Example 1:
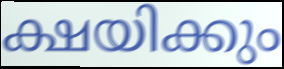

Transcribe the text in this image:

ക്ഷയിക്കും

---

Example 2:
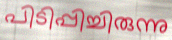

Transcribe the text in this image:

പിടിപ്പിച്ചിരുന്നു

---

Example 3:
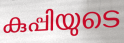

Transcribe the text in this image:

കുപ്പിയുടെ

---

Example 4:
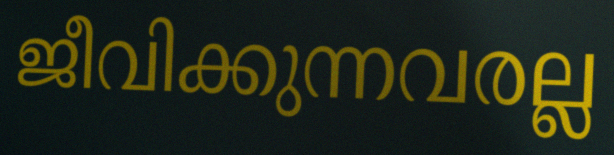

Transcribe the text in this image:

ജീവിക്കുന്നവരല്ല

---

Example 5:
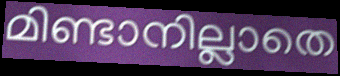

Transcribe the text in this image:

മിണ്ടാനില്ലാതെ